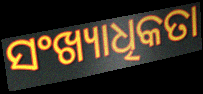
ସଂଖ୍ୟାଧିକତା